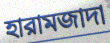
হারামজাদা